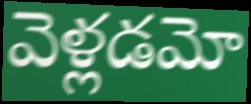
వెళ్లడమో